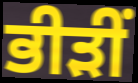
ਭੀੜੀਂ